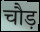
चौड़